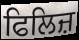
ਫਿਲਿਜ਼